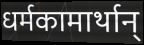
धर्मकामार्थान्